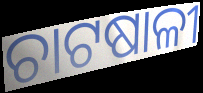
ଚାଟଷାଳୀ